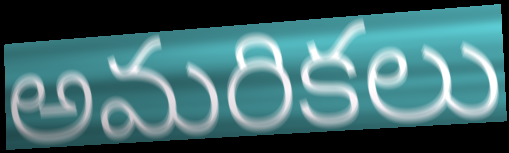
అమరికలు